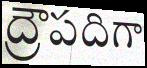
ద్రౌపదిగా